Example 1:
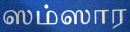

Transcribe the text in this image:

ஸம்ஸார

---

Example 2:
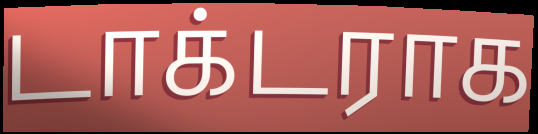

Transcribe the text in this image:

டாக்டராக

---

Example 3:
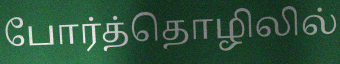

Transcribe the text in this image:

போர்த்தொழிலில்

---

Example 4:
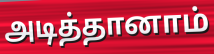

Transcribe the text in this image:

அடித்தானாம்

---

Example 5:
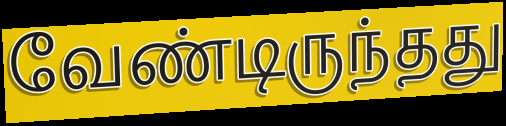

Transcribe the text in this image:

வேண்டிருந்தது